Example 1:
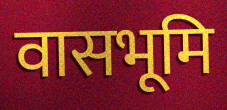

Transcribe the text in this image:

वासभूमि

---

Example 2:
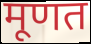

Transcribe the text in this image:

मूणत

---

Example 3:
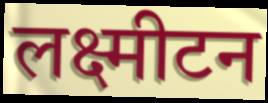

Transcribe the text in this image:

लक्ष्मीटन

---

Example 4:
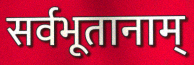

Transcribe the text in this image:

सर्वभूतानाम्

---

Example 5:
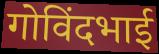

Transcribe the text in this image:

गोविंदभाई